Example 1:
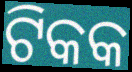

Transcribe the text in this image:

ଟିକକ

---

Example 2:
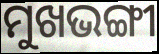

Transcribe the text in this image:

ମୁଖଭଙ୍ଗୀ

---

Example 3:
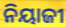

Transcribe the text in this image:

ନିୟାଜୀ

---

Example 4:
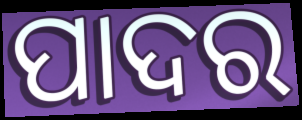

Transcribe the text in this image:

ପାଦର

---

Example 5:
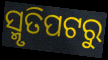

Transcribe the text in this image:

ସ୍ମୃତିପଟରୁ